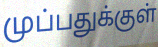
முப்பதுக்குள்